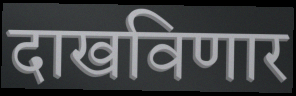
दाखविणार